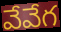
వేవేగ